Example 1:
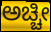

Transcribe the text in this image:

ಅಚ್ಚೀ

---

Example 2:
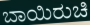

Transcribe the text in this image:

ಬಾಯಿರುಚಿ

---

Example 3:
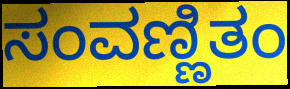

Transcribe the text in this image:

ಸಂವಣ್ಣಿತಂ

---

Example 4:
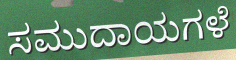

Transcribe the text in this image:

ಸಮುದಾಯಗಳೆ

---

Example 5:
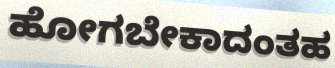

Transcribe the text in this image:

ಹೋಗಬೇಕಾದಂತಹ